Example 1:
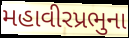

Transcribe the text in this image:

મહાવીરપ્રભુના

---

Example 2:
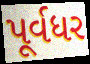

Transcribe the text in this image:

પૂર્વધર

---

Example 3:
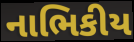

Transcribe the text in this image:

નાભિકીય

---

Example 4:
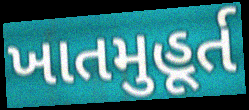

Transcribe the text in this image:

ખાતમુહૂર્ત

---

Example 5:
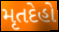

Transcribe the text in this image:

મૃતદેહો